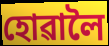
হোৱালৈ